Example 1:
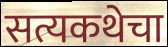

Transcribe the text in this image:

सत्यकथेचा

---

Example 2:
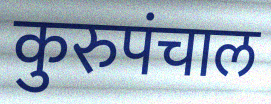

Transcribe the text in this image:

कुरुपंचाल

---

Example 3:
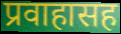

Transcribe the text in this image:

प्रवाहासह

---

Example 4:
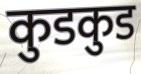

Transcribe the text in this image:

कुडकुड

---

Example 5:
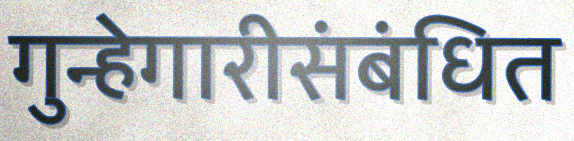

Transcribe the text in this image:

गुन्हेगारीसंबंधित